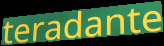
teradante